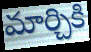
మార్చికి